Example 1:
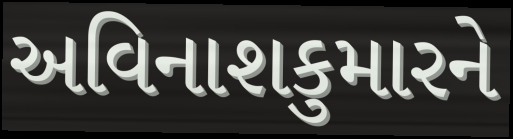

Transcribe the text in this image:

અવિનાશકુમારને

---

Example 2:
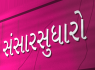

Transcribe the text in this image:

સંસારસુધારો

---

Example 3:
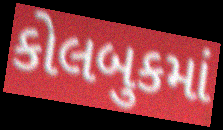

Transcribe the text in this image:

કોલબુકમાં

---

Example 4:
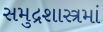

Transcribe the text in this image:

સમુદ્રશાસ્ત્રમાં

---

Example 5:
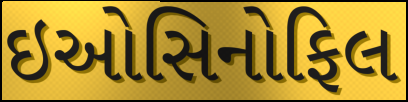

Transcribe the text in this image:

ઇઓસિનોફિલ